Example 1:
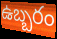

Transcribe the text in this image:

ఉబ్బరం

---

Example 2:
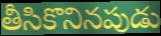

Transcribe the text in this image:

తీసికొనినపుడు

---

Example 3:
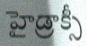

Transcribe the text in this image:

హైడ్రాక్సీ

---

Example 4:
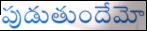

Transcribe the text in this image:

పుడుతుందేమో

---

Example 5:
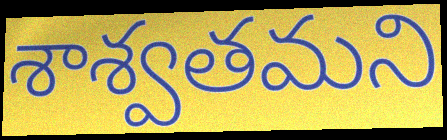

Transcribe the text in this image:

శాశ్వతమని